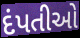
દંપતીઓ